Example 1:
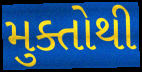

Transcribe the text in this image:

મુક્તોથી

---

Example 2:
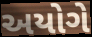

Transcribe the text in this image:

અયોગે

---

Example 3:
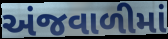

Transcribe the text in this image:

અંજવાળીમાં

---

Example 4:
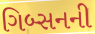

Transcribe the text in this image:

ગિબ્સનની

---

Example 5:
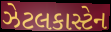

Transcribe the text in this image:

ઝેટલકાસ્ટેન